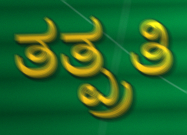
ತತ್ಪ್ರತಿ